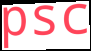
psc